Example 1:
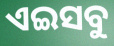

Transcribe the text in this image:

ଏଇସବୁ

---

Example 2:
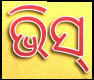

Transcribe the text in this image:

ଭିସ୍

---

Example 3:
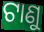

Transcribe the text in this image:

ଟାଣୁ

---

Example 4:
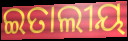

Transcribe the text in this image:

ଇତାଲୀୟ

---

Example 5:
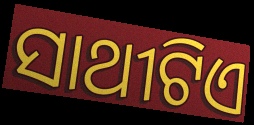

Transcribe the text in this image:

ସାଥୀଟିଏ